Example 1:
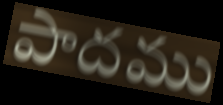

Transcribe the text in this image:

పాదము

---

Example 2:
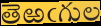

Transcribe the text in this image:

తెఱఁగుల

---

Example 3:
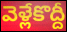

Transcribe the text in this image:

వెళ్లేకొద్దీ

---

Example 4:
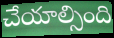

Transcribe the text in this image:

చేయాల్సింది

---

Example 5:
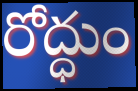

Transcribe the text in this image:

రోద్ధుం